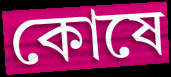
কোষে